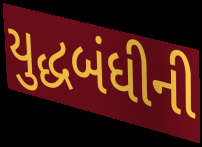
યુદ્ધબંધીની